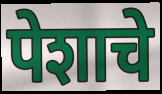
पेशाचे